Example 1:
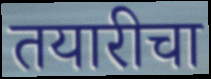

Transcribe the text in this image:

तयारीचा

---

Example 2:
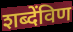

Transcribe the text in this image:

शब्देंविण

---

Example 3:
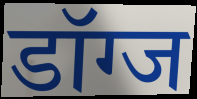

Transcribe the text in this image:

डॉग्ज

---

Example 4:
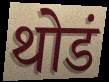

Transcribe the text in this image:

थोडं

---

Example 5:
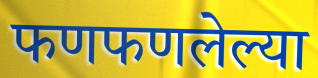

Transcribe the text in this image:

फणफणलेल्या